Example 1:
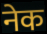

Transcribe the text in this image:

नेक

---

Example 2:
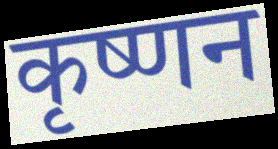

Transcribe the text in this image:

कृष्णन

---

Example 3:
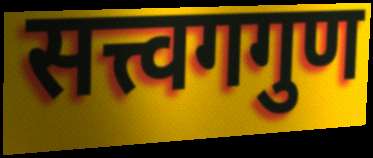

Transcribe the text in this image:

सत्त्वगगुण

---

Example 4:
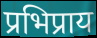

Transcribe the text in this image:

प्रभिप्राय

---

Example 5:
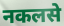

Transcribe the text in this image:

नकलसे